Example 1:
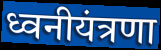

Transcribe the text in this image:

ध्वनीयंत्रणा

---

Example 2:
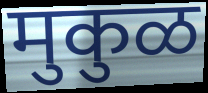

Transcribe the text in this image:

मुकुळ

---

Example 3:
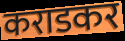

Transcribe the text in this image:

कराडकर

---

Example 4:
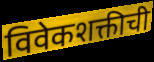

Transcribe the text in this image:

विवेकशक्तीची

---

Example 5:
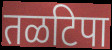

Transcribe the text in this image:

तळटिपा